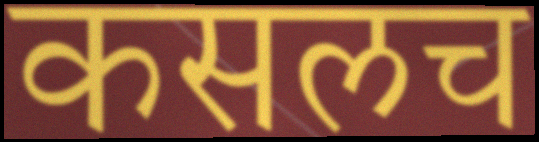
कसलच